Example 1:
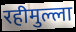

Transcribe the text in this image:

रहीमुल्ला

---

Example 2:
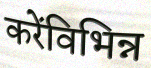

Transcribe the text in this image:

करेंविभिन्न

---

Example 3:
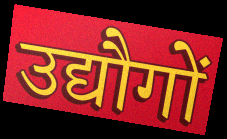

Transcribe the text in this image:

उद्यौगों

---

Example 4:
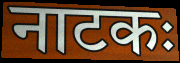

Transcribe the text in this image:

नाटकः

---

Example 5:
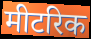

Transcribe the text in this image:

मीटरिक